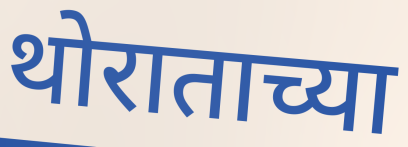
थोराताच्या